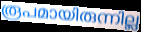
രൂപമായിരുന്നില്ല